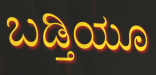
ಬಡ್ತಿಯೂ